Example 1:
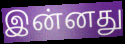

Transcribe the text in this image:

இன்னது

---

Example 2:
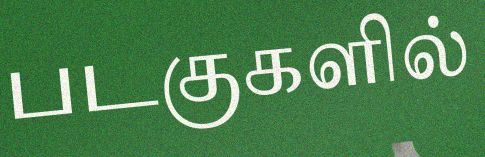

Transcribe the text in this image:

படகுகளில்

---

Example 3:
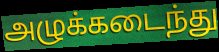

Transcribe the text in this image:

அழுக்கடைந்து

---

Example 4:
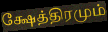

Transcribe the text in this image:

க்ஷேத்திரமும்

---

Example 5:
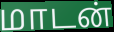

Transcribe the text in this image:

மாடன்